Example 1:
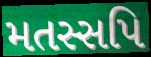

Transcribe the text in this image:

મતસ્સપિ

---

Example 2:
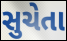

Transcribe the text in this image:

સુચેતા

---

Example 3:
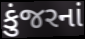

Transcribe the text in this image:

કુંજરનાં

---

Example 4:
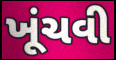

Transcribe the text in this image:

ખૂંચવી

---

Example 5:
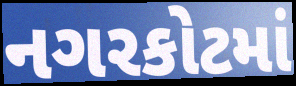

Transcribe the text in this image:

નગરકોટમાં